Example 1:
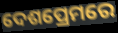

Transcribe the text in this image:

ଦେଶପ୍ରେମରେ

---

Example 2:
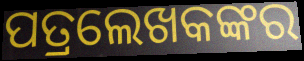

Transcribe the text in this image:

ପତ୍ରଲେଖକଙ୍କର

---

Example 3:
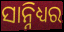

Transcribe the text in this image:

ସାନ୍ନିଧ୍ୟର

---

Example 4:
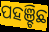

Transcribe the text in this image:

ପହଞ୍ଚିଛ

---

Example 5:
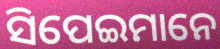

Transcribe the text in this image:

ସିପେଇମାନେ